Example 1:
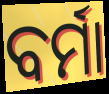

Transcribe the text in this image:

ବର୍ମା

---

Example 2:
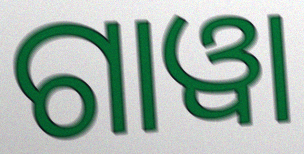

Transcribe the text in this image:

ଗାୱା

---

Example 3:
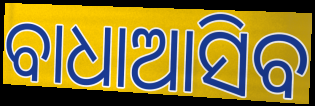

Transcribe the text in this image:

ବାଧାଆସିବ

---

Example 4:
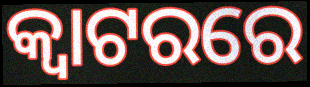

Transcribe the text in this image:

କ୍ୱାଟରରେ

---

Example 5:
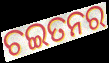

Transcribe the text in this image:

ଚଇତନର